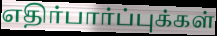
எதிர்பார்ப்புக்கள்